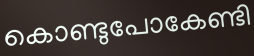
കൊണ്ടുപോകേണ്ടി